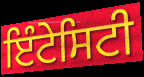
ਇੰਟੇਸਿਟੀ